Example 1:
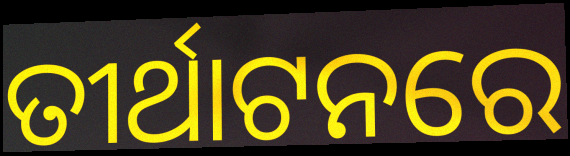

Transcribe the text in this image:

ତୀର୍ଥାଟନରେ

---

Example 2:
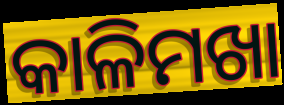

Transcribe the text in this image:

କାଳିମଖା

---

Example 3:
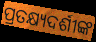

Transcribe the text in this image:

ପ୍ରତକ୍ଷ୍ୟଦର୍ଶୀଙ୍କ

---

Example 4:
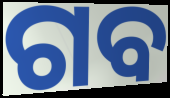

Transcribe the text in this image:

ଗବ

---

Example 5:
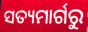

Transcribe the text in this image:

ସତ୍ୟମାର୍ଗରୁ